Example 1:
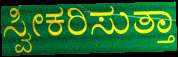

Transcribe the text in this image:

ಸ್ವೀಕರಿಸುತ್ತಾ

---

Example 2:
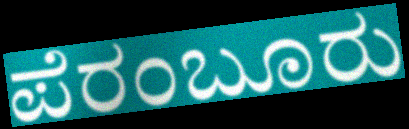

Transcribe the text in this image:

ಪೆರಂಬೂರು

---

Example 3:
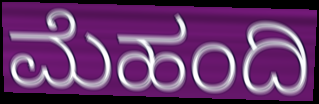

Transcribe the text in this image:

ಮೆಹಂದಿ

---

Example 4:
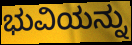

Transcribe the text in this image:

ಭುವಿಯನ್ನು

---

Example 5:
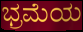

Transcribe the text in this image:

ಭ್ರಮೆಯ